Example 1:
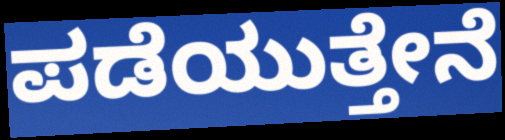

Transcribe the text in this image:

ಪಡೆಯುತ್ತೇನೆ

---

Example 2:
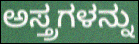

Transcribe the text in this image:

ಅಸ್ತ್ರಗಳನ್ನು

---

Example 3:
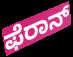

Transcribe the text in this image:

ಫೆರಾನ್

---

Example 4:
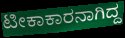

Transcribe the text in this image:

ಟೀಕಾಕಾರನಾಗಿದ್ದ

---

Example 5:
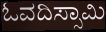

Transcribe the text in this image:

ಓವದಿಸ್ಸಾಮಿ